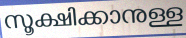
സൂക്ഷിക്കാനുള്ള